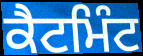
ਕੈਟਮਿੰਟ